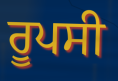
ਰੂਪਸੀ